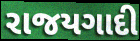
રાજયગાદી